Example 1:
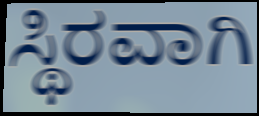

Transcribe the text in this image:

ಸ್ಥಿರವಾಗಿ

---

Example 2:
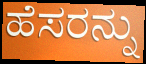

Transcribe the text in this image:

ಹೆಸರನ್ನು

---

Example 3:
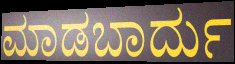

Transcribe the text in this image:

ಮಾಡಬಾರ್ದು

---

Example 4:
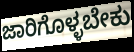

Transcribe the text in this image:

ಜಾರಿಗೊಳ್ಳಬೇಕು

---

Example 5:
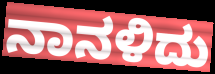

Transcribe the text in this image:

ನಾನಳಿದು